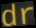
dr